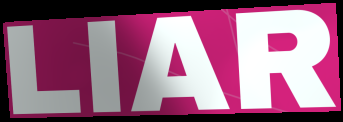
LIAR